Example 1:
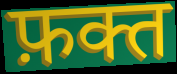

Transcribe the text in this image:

फ़क्त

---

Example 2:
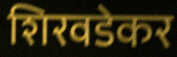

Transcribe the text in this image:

शिरवडेकर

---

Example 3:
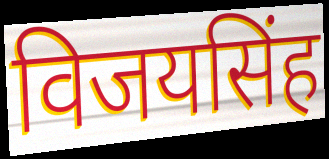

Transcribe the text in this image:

विजयसिंह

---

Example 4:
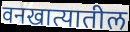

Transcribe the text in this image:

वनखात्यातील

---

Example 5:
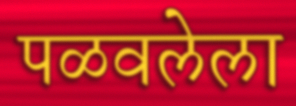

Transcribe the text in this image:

पळवलेला